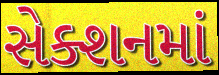
સેક્શનમાં